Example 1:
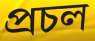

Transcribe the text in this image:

প্রচল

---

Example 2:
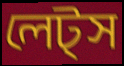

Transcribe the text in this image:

লেট্‌স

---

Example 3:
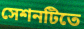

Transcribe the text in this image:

সেশনটিতে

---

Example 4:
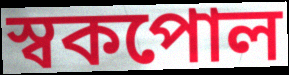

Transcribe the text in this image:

স্বকপোল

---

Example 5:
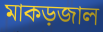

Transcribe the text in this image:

মাকড়জাল